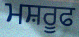
ਮਸ਼ਰੂਫ